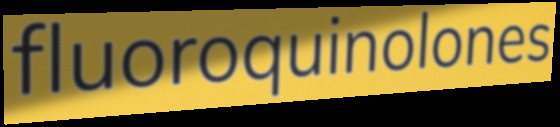
fluoroquinolones